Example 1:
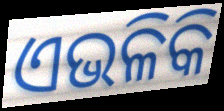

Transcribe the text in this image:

ଏଭଳିକି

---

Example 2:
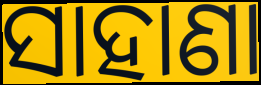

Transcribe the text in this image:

ସାହାଣା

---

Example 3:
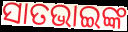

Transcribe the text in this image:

ସାତଭାଇଙ୍କ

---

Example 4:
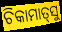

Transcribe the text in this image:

ଚିକାମାତ୍‌ସୁ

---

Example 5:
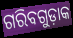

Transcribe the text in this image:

ଗରିବଗୁଡ଼ାକ